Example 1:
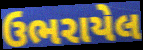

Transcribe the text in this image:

ઉભરાયેલ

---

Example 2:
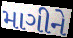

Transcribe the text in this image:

માગીને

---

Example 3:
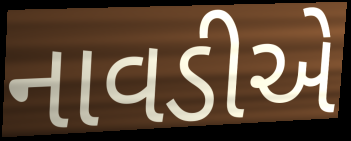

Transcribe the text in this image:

નાવડીએ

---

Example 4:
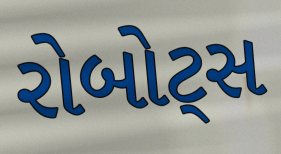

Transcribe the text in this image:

રોબોટ્સ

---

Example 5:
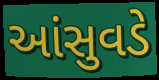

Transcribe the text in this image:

આંસુવડે